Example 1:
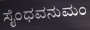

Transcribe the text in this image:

ಸೈಂಧವನುಮಂ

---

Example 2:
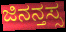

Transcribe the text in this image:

ಜಿನನ್ತಸ್ಸ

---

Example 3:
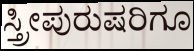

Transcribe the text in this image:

ಸ್ತ್ರೀಪುರುಷರಿಗೂ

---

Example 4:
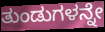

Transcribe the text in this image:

ತುಂಡುಗಳನ್ನೇ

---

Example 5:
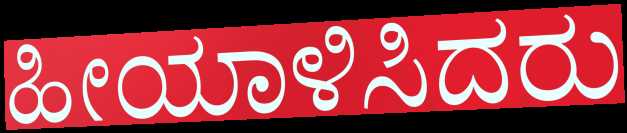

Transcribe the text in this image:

ಹೀಯಾಳಿಸಿದರು